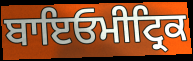
ਬਾਇਓਮੀਟ੍ਰਿਕ